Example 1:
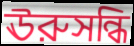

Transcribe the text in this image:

ঊরুসন্ধি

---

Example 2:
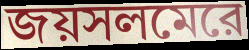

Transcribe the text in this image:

জয়সলমেরে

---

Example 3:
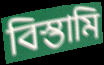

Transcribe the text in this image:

বিস্তামি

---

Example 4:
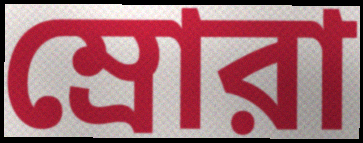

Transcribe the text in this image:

ম্রোরা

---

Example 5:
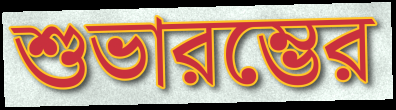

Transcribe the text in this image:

শুভারম্ভের